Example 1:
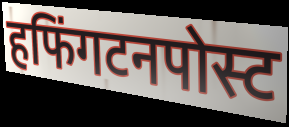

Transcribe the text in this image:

हफिंगटनपोस्ट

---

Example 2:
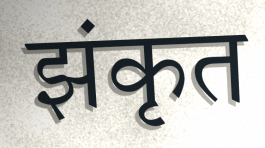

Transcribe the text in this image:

झंकृत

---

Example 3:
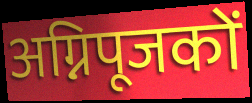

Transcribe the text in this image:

अग्निपूजकों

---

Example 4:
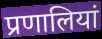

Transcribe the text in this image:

प्रणालियां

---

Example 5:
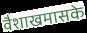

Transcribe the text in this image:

वैशाखमासके